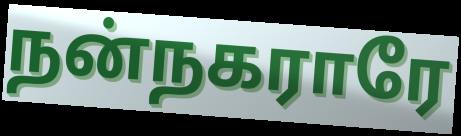
நன்நகராரே